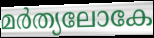
മർത്യലോകേ